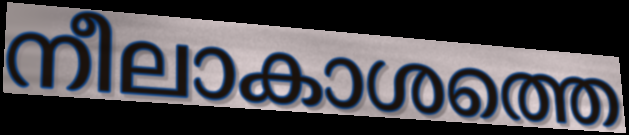
നീലാകാശത്തെ